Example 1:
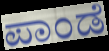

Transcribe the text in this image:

ಪಾಂಡೆ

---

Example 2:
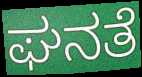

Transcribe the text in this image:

ಘನತೆ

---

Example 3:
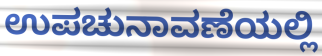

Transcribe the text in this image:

ಉಪಚುನಾವಣೆಯಲ್ಲಿ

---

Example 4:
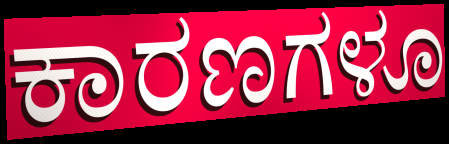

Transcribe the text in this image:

ಕಾರಣಗಳೂ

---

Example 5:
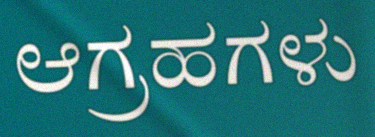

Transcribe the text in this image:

ಆಗ್ರಹಗಳು